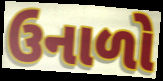
ઉનાળો